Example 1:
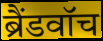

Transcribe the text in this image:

ब्रैंडवॉच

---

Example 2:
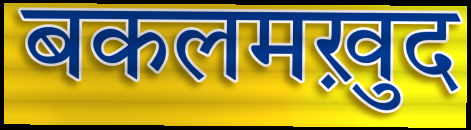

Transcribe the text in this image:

बकलमख़ुद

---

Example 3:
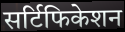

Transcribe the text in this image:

सर्टिफिकेशन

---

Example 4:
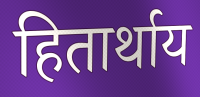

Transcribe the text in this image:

हितार्थाय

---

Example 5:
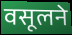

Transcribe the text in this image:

वसूलने